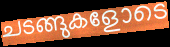
ചടങ്ങുകളോടെ